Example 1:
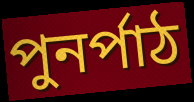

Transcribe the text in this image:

পুনর্পাঠ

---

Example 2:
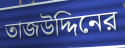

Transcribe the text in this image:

তাজউদ্দিনের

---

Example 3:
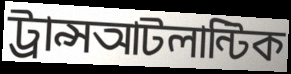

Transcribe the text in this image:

ট্রান্সআটলান্টিক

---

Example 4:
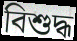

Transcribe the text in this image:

বিশুদ্ধ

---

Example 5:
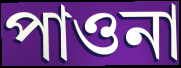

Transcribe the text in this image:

পাওনা